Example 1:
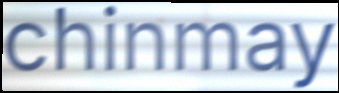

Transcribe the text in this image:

chinmay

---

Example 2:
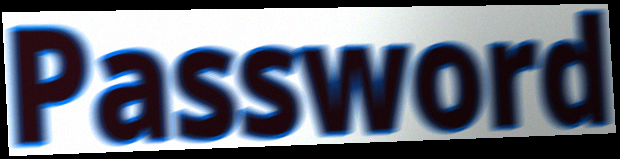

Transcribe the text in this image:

Password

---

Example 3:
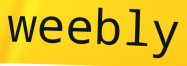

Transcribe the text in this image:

weebly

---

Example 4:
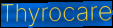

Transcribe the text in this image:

Thyrocare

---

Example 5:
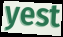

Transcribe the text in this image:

yest